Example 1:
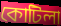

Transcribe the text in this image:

কোটিলা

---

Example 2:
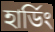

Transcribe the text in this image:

হার্ডিং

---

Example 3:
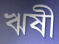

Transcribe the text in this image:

ঋষী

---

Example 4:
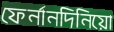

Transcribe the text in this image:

ফের্নানদিনিয়ো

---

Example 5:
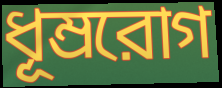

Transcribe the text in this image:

ধূম্ররোগ